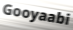
Gooyaabi